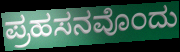
ಪ್ರಹಸನವೊಂದು